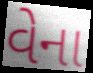
વેના